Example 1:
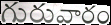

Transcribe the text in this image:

గురువారం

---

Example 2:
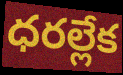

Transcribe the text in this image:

ధరల్లేక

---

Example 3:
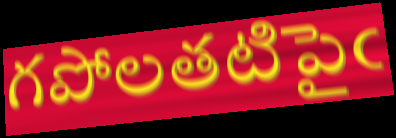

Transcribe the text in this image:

గపోలతటిపైఁ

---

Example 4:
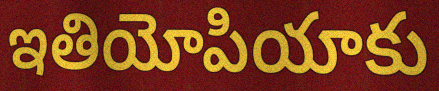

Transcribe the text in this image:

ఇతియోపియాకు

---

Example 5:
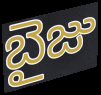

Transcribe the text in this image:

బైజు